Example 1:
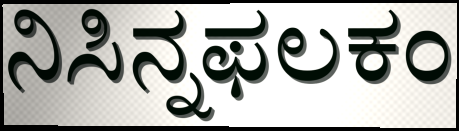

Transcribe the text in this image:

ನಿಸಿನ್ನಫಲಕಂ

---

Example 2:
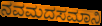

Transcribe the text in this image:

ನವಮದಸಮಾನಿ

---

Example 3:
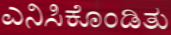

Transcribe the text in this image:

ಎನಿಸಿಕೊಂಡಿತು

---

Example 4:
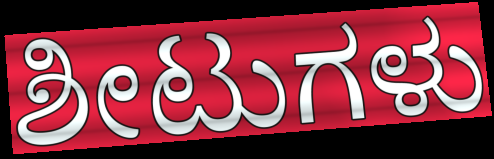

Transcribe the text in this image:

ಶೀಟುಗಳು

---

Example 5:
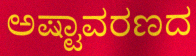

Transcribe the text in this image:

ಅಷ್ಟಾವರಣದ